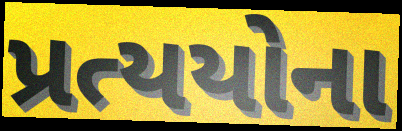
પ્રત્યયોના